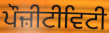
ਪੌਜ਼ੀਟੀਵਿਟੀ